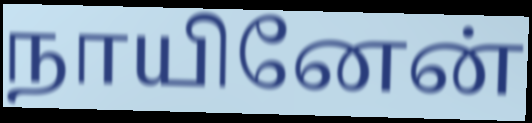
நாயினேன்